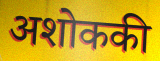
अशोककी